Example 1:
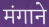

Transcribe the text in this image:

मंगाने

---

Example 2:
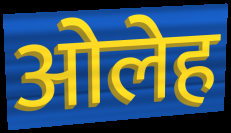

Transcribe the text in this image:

ओलेह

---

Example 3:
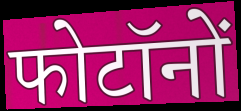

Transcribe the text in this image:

फोटॉनों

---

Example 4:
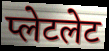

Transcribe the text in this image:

प्लेटलेट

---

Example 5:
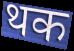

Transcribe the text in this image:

थक